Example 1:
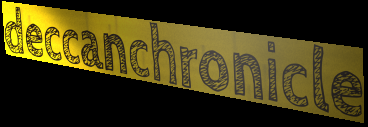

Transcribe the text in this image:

deccanchronicle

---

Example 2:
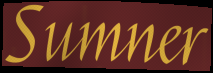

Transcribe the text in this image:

Sumner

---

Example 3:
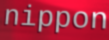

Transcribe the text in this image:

nippon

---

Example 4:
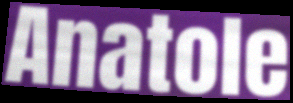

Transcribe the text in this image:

Anatole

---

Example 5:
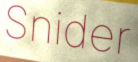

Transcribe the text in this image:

Snider